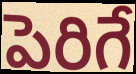
పెరిగే